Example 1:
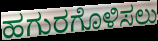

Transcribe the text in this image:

ಹಗುರಗೊಳಿಸಲು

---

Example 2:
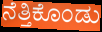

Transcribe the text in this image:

ನೆತ್ತಿಕೊಂಡು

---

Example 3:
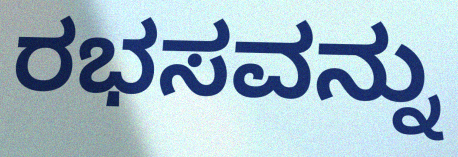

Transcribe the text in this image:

ರಭಸವನ್ನು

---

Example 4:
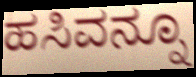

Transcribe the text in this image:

ಹಸಿವನ್ನೂ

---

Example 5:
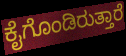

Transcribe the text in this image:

ಕೈಗೊಂಡಿರುತ್ತಾರೆ